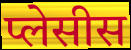
प्लेसीस